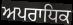
ਅਪਰਾਧਿਕ